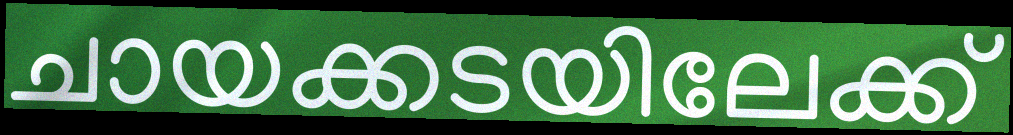
ചായക്കടയിലേക്ക്